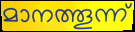
മാനത്തൂന്ന്